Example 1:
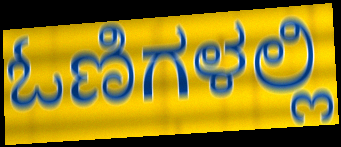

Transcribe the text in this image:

ಓಣಿಗಳಲ್ಲಿ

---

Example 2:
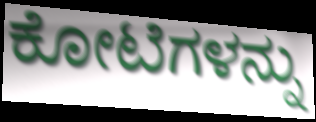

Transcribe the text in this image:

ಕೋಟೆಗಳನ್ನು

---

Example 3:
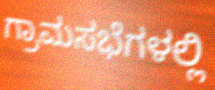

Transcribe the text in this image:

ಗ್ರಾಮಸಭೆಗಳಲ್ಲಿ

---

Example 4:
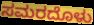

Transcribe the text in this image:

ಸಮರದೊಳು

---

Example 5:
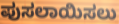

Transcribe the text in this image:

ಪುಸಲಾಯಿಸಲು